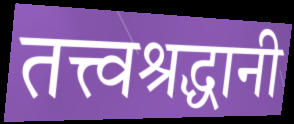
तत्त्वश्रद्धानी